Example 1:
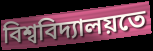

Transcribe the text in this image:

বিশ্ববিদ্যালয়তে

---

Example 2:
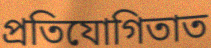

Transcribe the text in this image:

প্ৰতিযোগিতাত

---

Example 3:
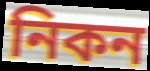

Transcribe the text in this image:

নিকন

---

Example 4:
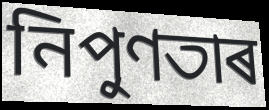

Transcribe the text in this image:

নিপুণতাৰ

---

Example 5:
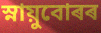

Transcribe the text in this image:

স্নায়ুবোৰৰ